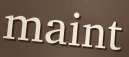
maint